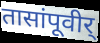
तासांपूवीर्